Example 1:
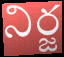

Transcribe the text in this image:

నిర్జ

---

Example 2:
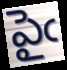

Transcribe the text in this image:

పైఁ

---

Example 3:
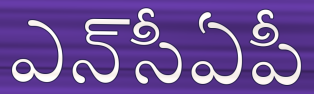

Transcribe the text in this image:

ఎన్‌సీఏపీ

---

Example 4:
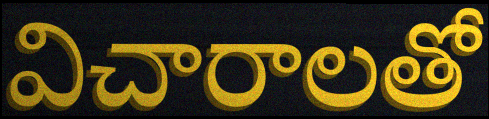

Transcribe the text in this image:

విచారాలతో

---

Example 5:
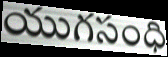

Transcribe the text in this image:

యుగసంధి